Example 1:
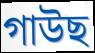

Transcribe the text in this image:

গাউছ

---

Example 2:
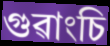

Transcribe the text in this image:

গুৱাংচি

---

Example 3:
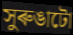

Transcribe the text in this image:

সুৰুঙাটো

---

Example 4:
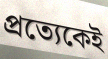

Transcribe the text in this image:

প্ৰত্যেকেই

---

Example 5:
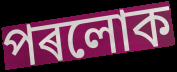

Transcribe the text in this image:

পৰলোক